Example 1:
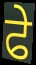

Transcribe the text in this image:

ਫੇ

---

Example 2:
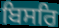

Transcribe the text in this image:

ਬਿਸਰਿ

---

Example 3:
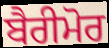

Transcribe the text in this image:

ਬੈਰੀਮੋਰ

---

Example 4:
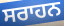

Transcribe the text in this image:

ਸਰਾਹਨ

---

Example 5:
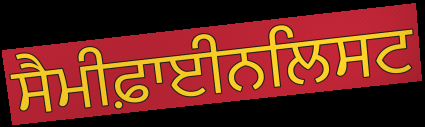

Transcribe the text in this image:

ਸੈਮੀਫ਼ਾਈਨਲਿਸਟ